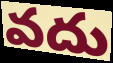
వదు